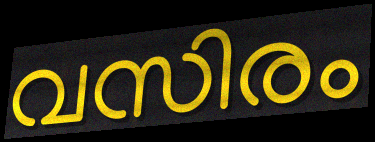
വസിരം